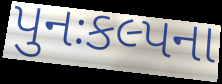
પુનઃકલ્પના